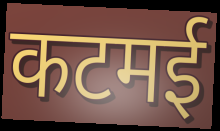
कटमई